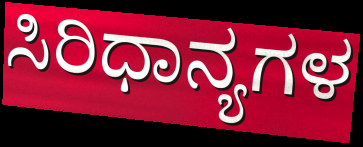
ಸಿರಿಧಾನ್ಯಗಳ